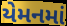
યેમનમાં